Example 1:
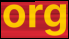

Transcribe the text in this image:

org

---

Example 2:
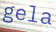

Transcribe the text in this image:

gela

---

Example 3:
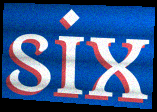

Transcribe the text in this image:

six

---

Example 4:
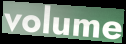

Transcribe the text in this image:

volume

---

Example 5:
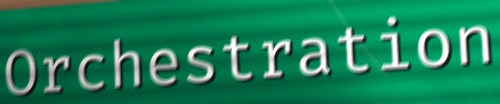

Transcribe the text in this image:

Orchestration